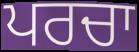
ਪਰਚਾ